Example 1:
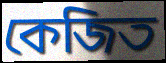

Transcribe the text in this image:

কেজিত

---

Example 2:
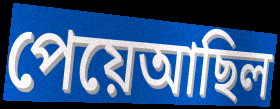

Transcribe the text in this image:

পেয়েআছিল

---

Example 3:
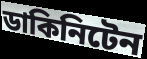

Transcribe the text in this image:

ডাকিনিটেন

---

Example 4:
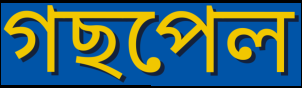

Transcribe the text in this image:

গছপেল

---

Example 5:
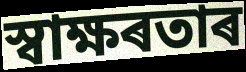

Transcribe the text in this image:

স্বাক্ষৰতাৰ